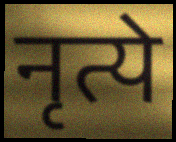
नृत्ये